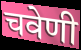
चवेणी